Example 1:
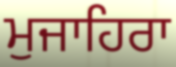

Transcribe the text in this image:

ਮੁਜਾਹਿਰਾ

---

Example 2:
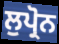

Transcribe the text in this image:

ਲੁਪ੍ਰੋਨ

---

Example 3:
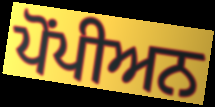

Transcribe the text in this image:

ਪੋਂਪੀਅਨ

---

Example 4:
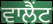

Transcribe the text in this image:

ਵਾਲੈਂਟ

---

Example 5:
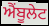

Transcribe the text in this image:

ਐਂਬੂਲੇਟ